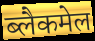
ब्लैकमेल